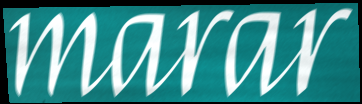
marar